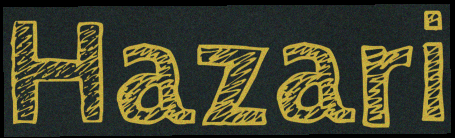
Hazari